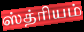
ஸ்த்ரியம்